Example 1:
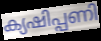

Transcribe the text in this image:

ക്യഷിപ്പണി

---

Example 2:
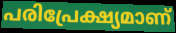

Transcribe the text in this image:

പരിപ്രേക്ഷ്യമാണ്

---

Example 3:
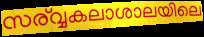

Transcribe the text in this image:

സര്വ്വകലാശാലയിലെ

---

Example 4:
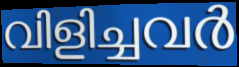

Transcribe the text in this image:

വിളിച്ചവർ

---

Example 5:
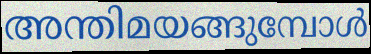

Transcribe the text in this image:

അന്തിമയങ്ങുമ്പോൾ